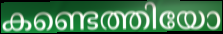
കണ്ടെത്തിയോ